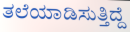
ತಲೆಯಾಡಿಸುತ್ತಿದ್ದೆ